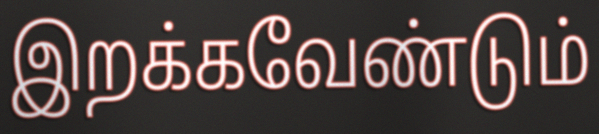
இறக்கவேண்டும்